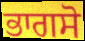
ਭਾਗਸੋ